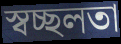
স্বচ্ছলতা